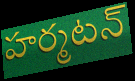
హర్మటన్